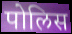
पोलिस